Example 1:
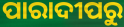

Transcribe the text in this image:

ପାରାଦୀପରୁ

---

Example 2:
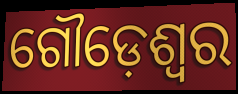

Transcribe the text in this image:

ଗୌଡ଼େଶ୍ୱର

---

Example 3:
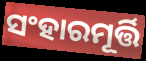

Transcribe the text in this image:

ସଂହାରମୂର୍ତ୍ତି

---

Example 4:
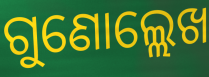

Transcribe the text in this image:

ଗୁଣୋଲ୍ଲେଖ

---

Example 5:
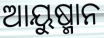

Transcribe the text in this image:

ଆୟୁଷ୍ମାନ